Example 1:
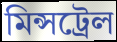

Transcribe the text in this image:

মিন্সট্রেল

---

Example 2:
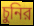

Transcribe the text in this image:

চুনির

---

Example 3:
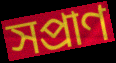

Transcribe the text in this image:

সপ্রাণ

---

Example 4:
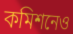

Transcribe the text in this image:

কমিশনেও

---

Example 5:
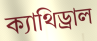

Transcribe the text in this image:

ক্যাথিড্রাল